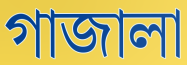
গাজালা